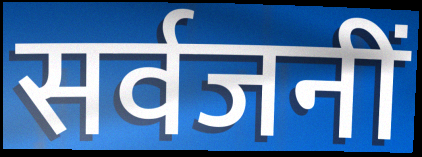
सर्वजनीं